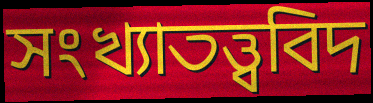
সংখ্যাতত্ত্ববিদ